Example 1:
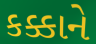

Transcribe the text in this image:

કક્કાને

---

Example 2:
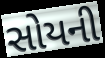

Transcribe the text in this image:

સોયની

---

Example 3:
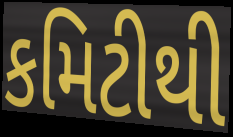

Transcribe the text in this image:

કમિટીથી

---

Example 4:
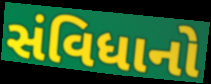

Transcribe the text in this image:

સંવિધાનો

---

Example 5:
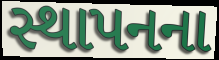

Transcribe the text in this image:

સ્થાપનના